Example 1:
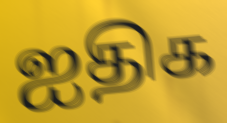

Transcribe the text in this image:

ஐதிக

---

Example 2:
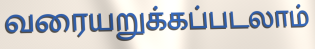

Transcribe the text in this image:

வரையறுக்கப்படலாம்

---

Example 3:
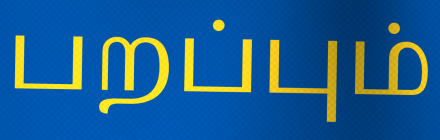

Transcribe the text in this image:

பறப்பும்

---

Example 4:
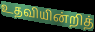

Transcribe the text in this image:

உதவியின்றித்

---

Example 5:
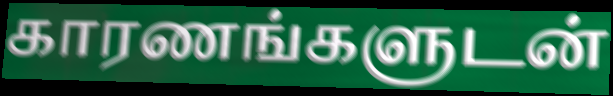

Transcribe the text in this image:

காரணங்களுடன்